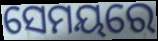
ସେମୟରେ